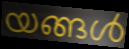
യങ്ങൾ